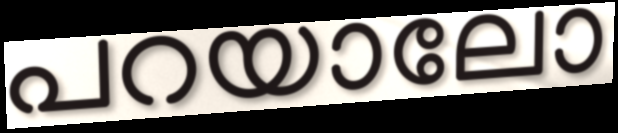
പറയാലോ